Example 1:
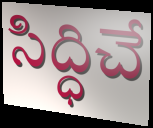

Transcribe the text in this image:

సిద్ధిచే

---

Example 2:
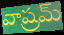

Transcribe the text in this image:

వాష్రమ్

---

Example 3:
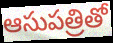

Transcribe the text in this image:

ఆసుపత్రితో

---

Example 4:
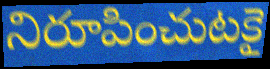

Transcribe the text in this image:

నిరూపించుటకై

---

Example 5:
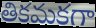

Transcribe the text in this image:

తికమకగా